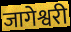
जागेश्वरी